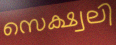
സെക്ഷ്വലി